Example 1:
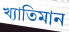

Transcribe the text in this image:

খ্যাতিমান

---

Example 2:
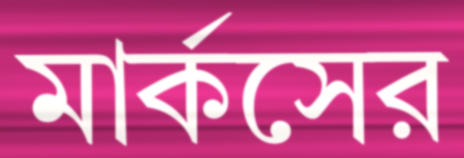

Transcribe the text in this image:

মার্কসের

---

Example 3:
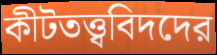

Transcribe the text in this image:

কীটতত্ত্ববিদদের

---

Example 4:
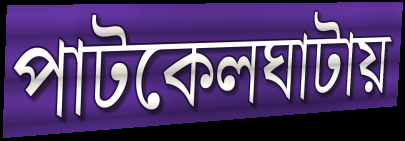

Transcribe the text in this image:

পাটকেলঘাটায়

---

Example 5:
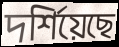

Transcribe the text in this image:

দর্শিয়েছে